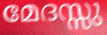
മേദസ്സു